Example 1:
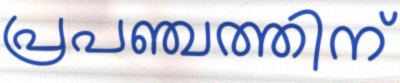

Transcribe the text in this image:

പ്രപഞ്ചത്തിന്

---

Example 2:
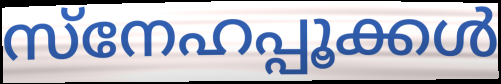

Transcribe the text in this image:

സ്നേഹപ്പൂക്കൾ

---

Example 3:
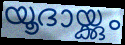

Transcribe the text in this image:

യൂദായ്ക്കും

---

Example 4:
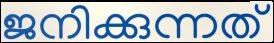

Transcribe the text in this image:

ജനിക്കുന്നത്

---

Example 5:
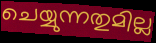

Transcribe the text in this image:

ചെയ്യുന്നതുമില്ല